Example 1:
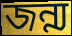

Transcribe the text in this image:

জন্ম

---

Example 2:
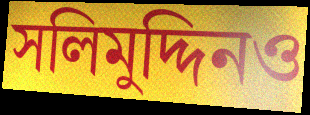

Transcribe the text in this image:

সলিমুদ্দিনও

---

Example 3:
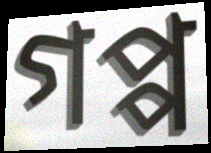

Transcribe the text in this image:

গপ্প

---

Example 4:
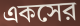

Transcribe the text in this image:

একসের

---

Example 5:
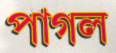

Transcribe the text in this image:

পাগল